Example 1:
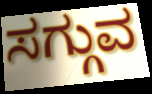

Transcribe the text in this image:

ಸಗ್ಗುವ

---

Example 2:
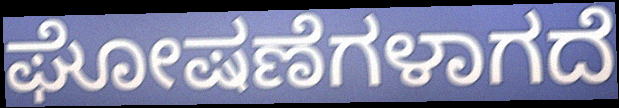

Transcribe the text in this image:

ಘೋಷಣೆಗಳಾಗದೆ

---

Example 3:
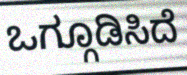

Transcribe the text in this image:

ಒಗ್ಗೂಡಿಸಿದೆ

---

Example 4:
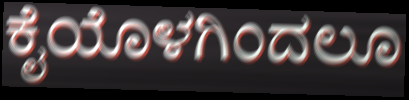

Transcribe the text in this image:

ಕೈಯೊಳಗಿಂದಲೂ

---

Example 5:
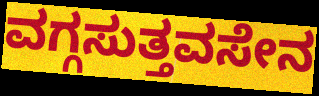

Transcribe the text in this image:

ವಗ್ಗಸುತ್ತವಸೇನ